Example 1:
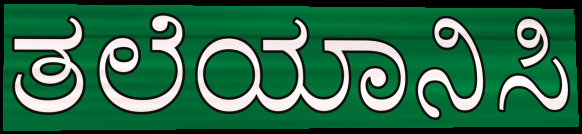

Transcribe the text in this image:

ತಲೆಯಾನಿಸಿ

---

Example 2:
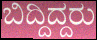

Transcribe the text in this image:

ಬಿದ್ದಿದ್ದರು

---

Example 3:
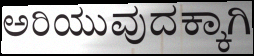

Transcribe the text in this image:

ಅರಿಯುವುದಕ್ಕಾಗಿ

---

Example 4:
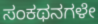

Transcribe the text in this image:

ಸಂಕಥನಗಳೇ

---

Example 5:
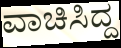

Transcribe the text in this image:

ವಾಚಿಸಿದ್ದ